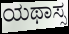
ಯಥಾಸ್ಸ